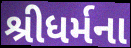
શ્રીધર્મના